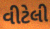
વીટેલી